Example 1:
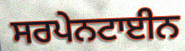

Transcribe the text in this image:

ਸਰਪੇਨਟਾਈਨ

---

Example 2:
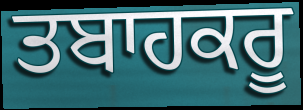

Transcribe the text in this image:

ਤਬਾਹਕਰੂ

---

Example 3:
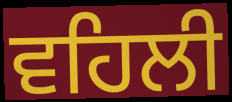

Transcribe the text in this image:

ਵਹਿਲੀ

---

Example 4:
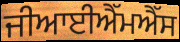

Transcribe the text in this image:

ਜੀਆਈਐੱਮਐੱਸ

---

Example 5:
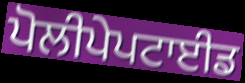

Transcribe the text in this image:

ਪੋਲੀਪੇਪਟਾਈਡ